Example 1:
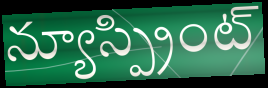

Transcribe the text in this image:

న్యూస్ప్రింట్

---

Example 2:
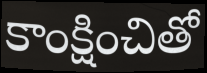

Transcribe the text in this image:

కాంక్షించితో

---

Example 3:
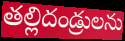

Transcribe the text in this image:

తల్లిదండ్రులను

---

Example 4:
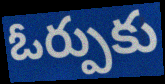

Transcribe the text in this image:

ఓర్పుకు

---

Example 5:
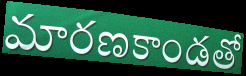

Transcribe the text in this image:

మారణకాండతో